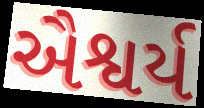
ઐશ્વર્ય